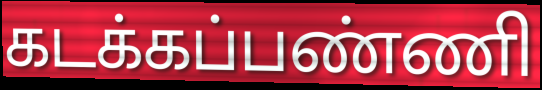
கடக்கப்பண்ணி